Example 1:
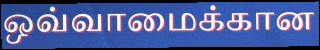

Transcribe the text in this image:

ஒவ்வாமைக்கான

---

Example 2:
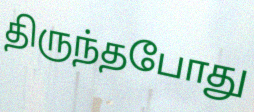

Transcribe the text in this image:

திருந்தபோது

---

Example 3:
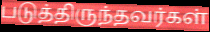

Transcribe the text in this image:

படுத்திருந்தவர்கள்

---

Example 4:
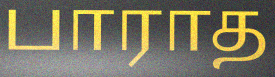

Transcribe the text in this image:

பாராத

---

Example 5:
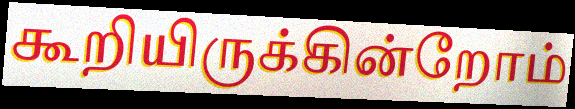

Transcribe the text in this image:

கூறியிருக்கின்றோம்